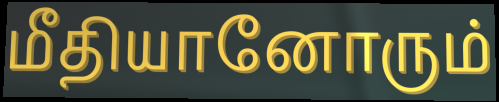
மீதியானோரும்